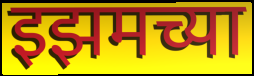
इझमच्या